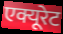
एक्यूरेट